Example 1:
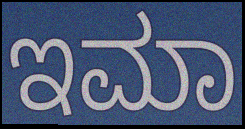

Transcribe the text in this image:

ಇಮಾ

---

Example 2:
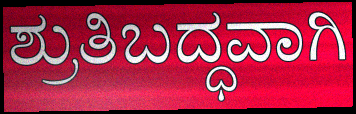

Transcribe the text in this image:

ಶ್ರುತಿಬದ್ಧವಾಗಿ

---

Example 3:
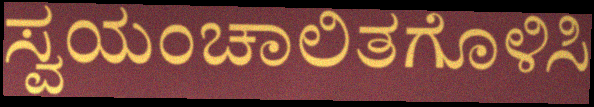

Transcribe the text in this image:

ಸ್ವಯಂಚಾಲಿತಗೊಳಿಸಿ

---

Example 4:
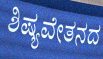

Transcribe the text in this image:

ಶಿಷ್ಯವೇತನದ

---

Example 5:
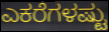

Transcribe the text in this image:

ಎಕರೆಗಳಷ್ಟು